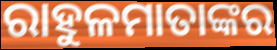
ରାହୁଳମାତାଙ୍କର